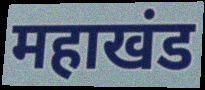
महाखंड